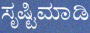
ಸೃಷ್ಟಿಮಾಡಿ